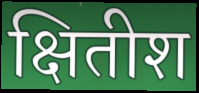
क्षितीश